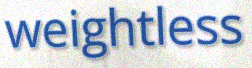
weightless